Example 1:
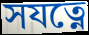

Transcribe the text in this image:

সযত্নে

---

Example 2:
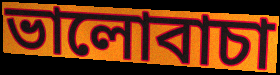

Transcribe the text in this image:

ভালোবাচা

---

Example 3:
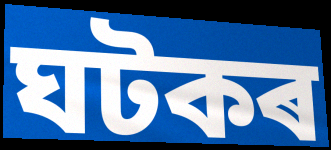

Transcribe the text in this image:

ঘটকৰ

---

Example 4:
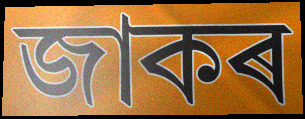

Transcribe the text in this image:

জাকৰ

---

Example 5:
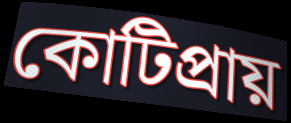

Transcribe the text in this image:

কোটিপ্ৰায়